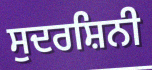
ਸੁਦਰਸ਼ਿਨੀ